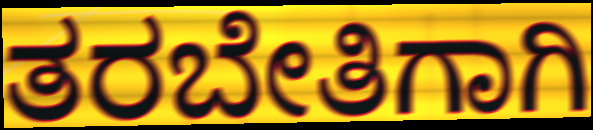
ತರಬೇತಿಗಾಗಿ